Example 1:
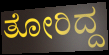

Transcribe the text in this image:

ತೋರಿದ್ದ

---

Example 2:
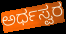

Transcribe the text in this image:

ಅರ್ಧಸ್ವರ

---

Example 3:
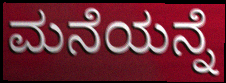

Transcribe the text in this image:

ಮನೆಯನ್ನೆ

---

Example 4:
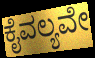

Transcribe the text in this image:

ಕೈವಲ್ಯವೇ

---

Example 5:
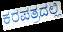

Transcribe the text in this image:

ಕರಪತ್ರದಲ್ಲಿ